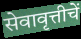
सेवावृत्तीचें